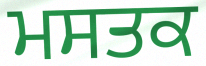
ਮਸਤਕ